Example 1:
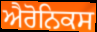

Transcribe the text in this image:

ਐਰੋਨਿਕਸ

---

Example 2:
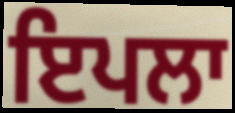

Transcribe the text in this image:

ਇਪਲਾ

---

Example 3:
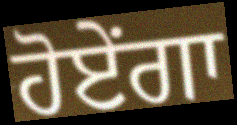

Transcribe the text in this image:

ਹੋਏਂਗਾ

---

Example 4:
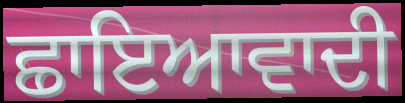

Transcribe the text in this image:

ਛਾਇਆਵਾਦੀ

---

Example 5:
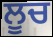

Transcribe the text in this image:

ਲੂਚ